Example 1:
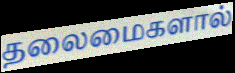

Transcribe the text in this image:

தலைமைகளால்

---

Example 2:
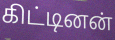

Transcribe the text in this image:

கிட்டினன்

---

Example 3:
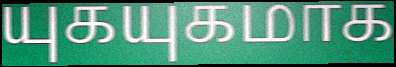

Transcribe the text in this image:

யுகயுகமாக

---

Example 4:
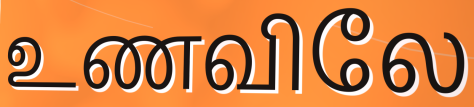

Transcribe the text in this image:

உணவிலே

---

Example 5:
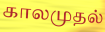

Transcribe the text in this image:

காலமுதல்